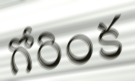
గోరింక